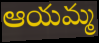
ఆయమ్మ